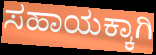
ಸಹಾಯಕ್ಕಾಗಿ